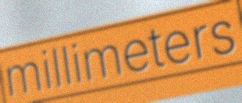
millimeters